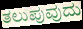
ತಲುಪುವುದು